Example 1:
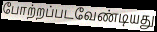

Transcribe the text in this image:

போற்றப்படவேண்டியது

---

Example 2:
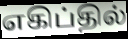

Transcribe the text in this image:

எகிப்தில்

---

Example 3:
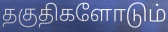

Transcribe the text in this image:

தகுதிகளோடும்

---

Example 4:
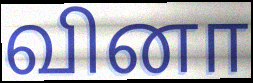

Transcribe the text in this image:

வினா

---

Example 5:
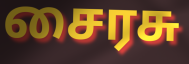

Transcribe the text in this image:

சைரசு